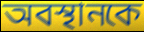
অবস্থানকে